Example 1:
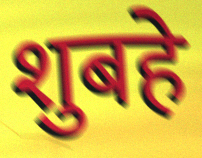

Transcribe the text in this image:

शुबहे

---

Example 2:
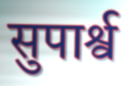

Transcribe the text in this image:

सुपार्श्व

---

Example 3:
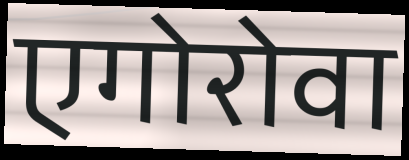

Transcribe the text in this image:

एगोरोवा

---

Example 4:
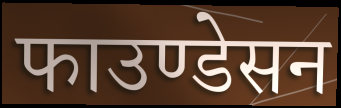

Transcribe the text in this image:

फाउण्डेसन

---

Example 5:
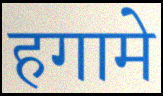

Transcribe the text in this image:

हगामे